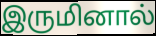
இருமினால்